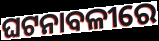
ଘଟନାବଳୀରେ